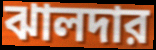
ঝালদার